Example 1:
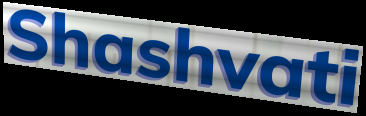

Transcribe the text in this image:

Shashvati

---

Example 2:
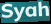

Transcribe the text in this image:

Syah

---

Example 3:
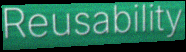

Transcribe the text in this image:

Reusability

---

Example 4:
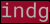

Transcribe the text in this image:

indg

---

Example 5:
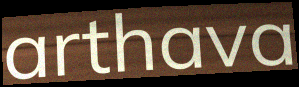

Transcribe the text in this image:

arthava